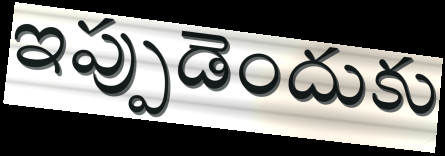
ఇప్పుడెందుకు